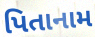
પિતાનામ